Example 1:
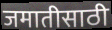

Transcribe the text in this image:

जमातीसाठी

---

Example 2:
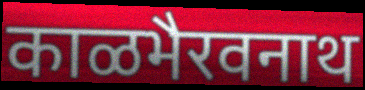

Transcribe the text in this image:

काळभैरवनाथ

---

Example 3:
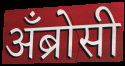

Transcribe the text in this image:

अँब्रोसी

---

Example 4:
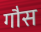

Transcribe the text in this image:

गौस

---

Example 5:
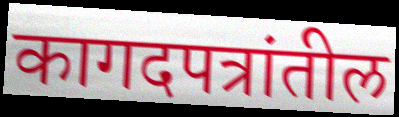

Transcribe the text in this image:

कागदपत्रांतील